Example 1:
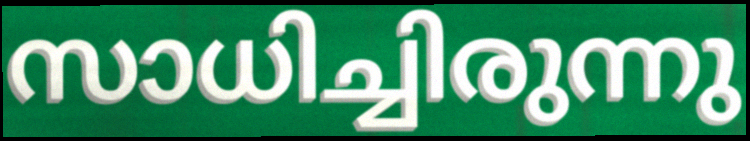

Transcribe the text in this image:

സാധിച്ചിരുന്നു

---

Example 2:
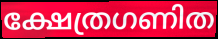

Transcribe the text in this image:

ക്ഷേത്രഗണിത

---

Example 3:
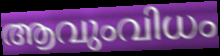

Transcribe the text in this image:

ആവുംവിധം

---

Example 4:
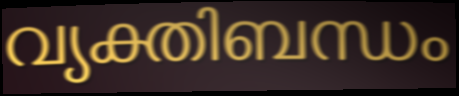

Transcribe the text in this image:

വ്യക്തിബന്ധം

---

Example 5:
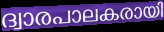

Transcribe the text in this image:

ദ്വാരപാലകരായി